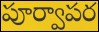
పూర్వాపర